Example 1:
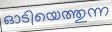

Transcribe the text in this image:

ഓടിയെത്തുന്ന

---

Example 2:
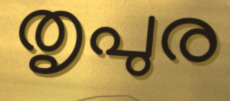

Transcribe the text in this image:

തൃപുര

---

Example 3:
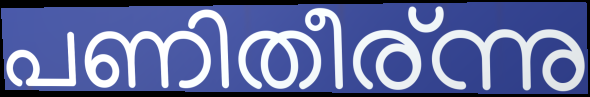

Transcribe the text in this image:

പണിതീര്ന്നു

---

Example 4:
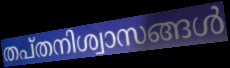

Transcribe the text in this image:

തപ്തനിശ്വാസങ്ങൾ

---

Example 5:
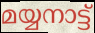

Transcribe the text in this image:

മയ്യനാട്ട്